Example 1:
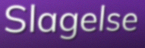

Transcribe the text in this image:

Slagelse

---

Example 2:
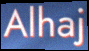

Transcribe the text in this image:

Alhaj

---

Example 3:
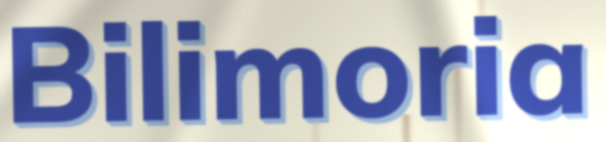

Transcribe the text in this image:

Bilimoria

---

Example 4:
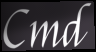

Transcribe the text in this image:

Cmd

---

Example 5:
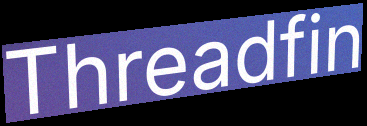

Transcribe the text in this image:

Threadfin